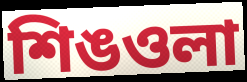
শিঙওলা